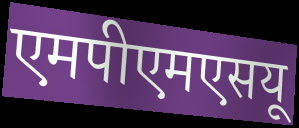
एमपीएमएसयू